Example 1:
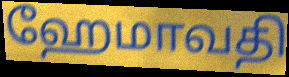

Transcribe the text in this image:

ஹேமாவதி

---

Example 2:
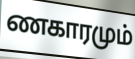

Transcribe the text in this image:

ணகாரமும்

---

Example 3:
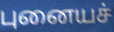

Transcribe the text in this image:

புனையச்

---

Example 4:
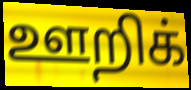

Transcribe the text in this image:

ஊறிக்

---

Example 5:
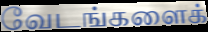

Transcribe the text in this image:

வேடங்களைக்